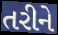
તરીને